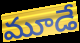
మూడే